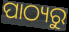
ପାଠ୍ୟରୁ